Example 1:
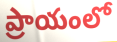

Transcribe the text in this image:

ప్రాయంలో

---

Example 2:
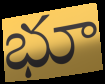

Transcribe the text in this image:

భూ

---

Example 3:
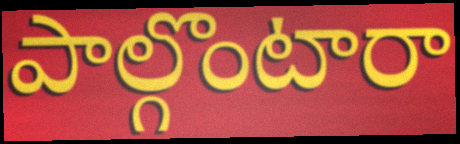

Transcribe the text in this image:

పాల్గొంటారా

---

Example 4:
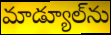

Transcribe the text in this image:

మాడ్యూల్‌ను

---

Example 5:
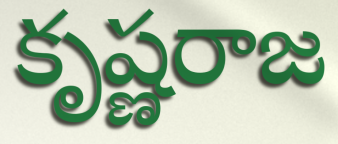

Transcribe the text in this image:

కృష్ణరాజ